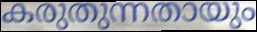
കരുതുന്നതായും